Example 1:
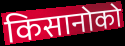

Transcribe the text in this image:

किसानोको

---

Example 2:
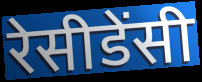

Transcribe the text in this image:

रेसीडेंसी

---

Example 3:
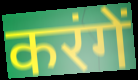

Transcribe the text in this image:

करंगें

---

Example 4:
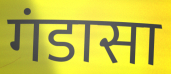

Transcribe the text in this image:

गंडासा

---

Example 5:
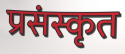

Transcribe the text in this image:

प्रसंस्कृत